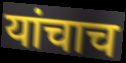
यांचाच